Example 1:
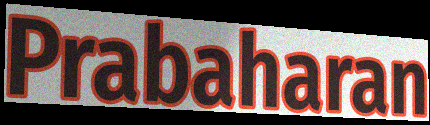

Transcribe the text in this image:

Prabaharan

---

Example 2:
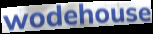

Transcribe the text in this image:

wodehouse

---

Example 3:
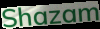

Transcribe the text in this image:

Shazam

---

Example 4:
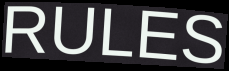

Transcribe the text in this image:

RULES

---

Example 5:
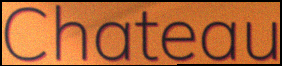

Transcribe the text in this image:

Chateau